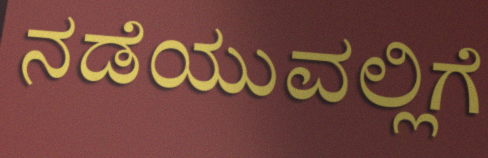
ನಡೆಯುವಲ್ಲಿಗೆ